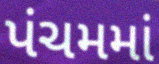
પંચમમાં